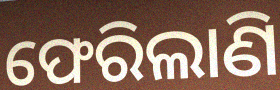
ଫେରିଲାଣି